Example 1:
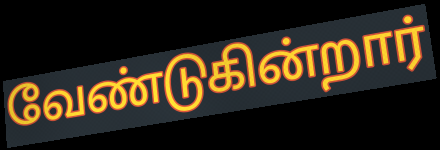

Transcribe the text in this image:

வேண்டுகின்றார்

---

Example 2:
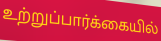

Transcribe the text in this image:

உற்றுப்பார்க்கையில்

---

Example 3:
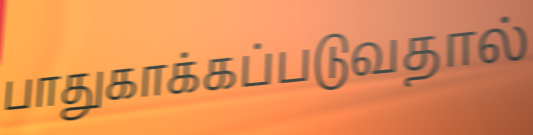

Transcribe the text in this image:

பாதுகாக்கப்படுவதால்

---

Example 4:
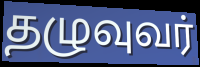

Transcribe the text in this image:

தழுவுவர்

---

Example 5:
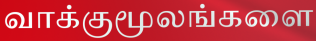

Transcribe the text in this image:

வாக்குமூலங்களை